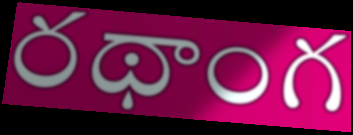
రథాంగ